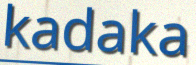
kadaka